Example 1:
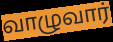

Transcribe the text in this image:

வாழுவார்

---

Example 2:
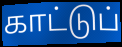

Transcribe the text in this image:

காட்டுப்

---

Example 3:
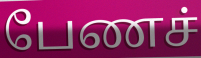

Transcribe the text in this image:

பேணச்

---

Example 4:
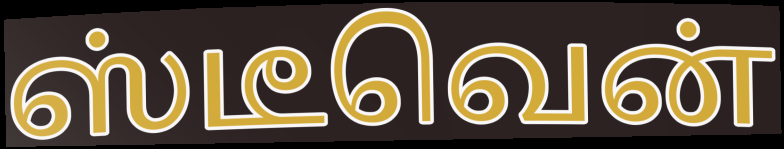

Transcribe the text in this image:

ஸ்டீவென்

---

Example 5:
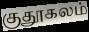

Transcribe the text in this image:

குதூகலம்